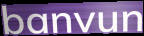
banvun